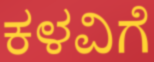
ಕಳವಿಗೆ